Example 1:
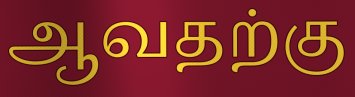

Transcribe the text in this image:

ஆவதற்கு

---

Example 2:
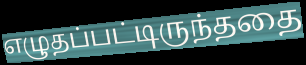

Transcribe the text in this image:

எழுதப்பட்டிருந்ததை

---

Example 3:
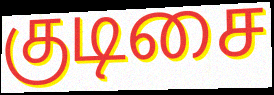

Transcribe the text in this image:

குடிசை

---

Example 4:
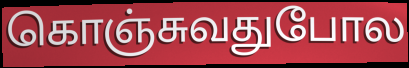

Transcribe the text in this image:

கொஞ்சுவதுபோல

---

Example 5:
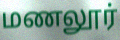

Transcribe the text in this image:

மணலூர்